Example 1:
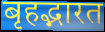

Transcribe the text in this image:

बृहद्भारत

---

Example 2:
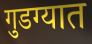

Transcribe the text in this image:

गुडग्यात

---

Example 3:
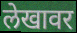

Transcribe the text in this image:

लेखावर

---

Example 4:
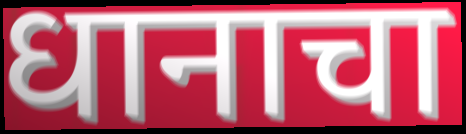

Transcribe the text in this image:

धानाचा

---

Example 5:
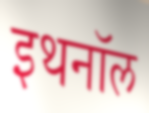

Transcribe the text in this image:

इथनॉल